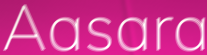
Aasara